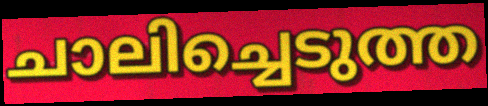
ചാലിച്ചെടുത്ത